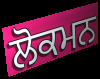
ਲੋਕਮਨ